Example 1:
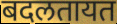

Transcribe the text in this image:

बदलतायत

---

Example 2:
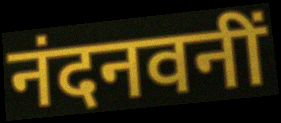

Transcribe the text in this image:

नंदनवनीं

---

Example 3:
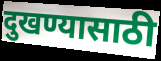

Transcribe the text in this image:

दुखण्यासाठी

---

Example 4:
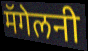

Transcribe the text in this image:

मॅगेलनी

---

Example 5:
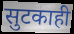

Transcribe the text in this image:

सुटकाही